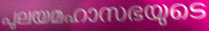
പുലയമഹാസഭയുടെ